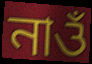
নাওঁ